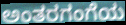
ಅಂತರಗಂಗೆಯ